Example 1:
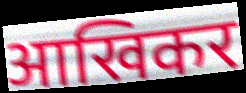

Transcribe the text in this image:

आखिकर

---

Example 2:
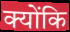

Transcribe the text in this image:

क्‍योंकि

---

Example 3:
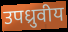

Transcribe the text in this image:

उपध्रुवीय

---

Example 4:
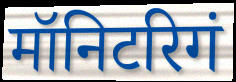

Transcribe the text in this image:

मॉनिटरिगं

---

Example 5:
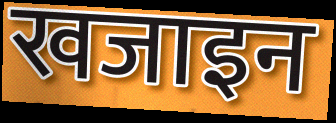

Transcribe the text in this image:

खजाइन